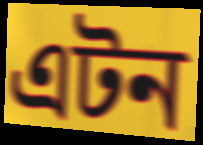
এটন